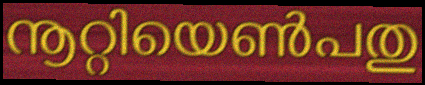
നൂറ്റിയെൺപതു